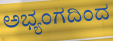
ಅಭ್ಯಂಗದಿಂದ